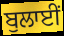
ਬੁਲਾਈਂ